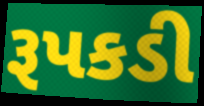
રૂપકડી